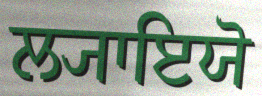
ਲ੍ਯਾਇਯੋ